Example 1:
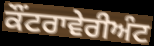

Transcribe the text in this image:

ਕੌਂਟਰਾਵੇਰੀਅੰਟ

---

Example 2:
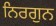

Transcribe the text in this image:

ਨਿਰਗੁਨ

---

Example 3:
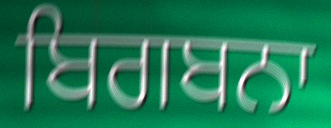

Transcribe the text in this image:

ਬਿਗਬਨਾ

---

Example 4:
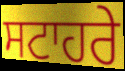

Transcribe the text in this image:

ਸਟਾਹਰੇ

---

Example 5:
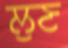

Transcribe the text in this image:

ਲੁਣ